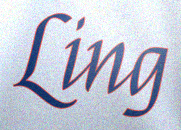
Ling